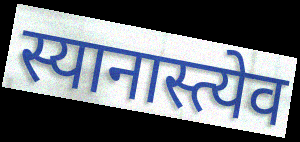
स्यानास्त्येव